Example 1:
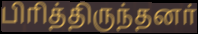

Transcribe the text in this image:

பிரித்திருந்தனர்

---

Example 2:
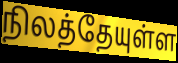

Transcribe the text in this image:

நிலத்தேயுள்ள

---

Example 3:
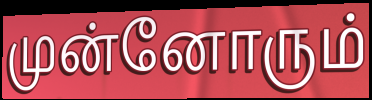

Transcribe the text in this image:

முன்னோரும்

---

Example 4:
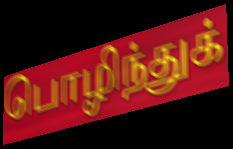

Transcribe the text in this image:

பொழிந்துக்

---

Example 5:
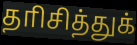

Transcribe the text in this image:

தரிசித்துக்